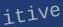
itive